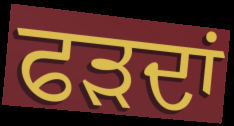
ਫੜਦਾਂ